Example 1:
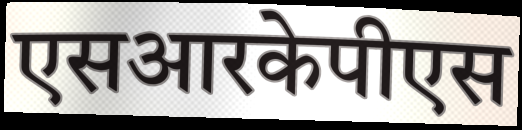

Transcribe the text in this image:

एसआरकेपीएस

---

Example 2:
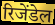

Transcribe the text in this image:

रिजेंडेल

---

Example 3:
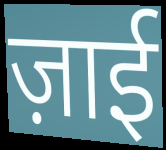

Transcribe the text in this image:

ज़ाई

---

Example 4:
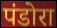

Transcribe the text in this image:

पंडोरा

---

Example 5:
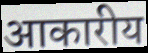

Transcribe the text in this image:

आकारीय